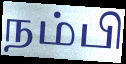
நம்பி